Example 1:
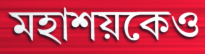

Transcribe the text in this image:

মহাশয়কেও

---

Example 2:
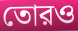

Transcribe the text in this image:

তোরও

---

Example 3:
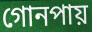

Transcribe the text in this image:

গোনপায়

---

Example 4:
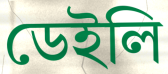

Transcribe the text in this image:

ডেইলি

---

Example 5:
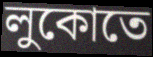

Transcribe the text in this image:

লুকোতে